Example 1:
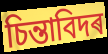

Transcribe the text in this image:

চিন্তাবিদৰ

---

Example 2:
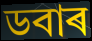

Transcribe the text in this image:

ডবাৰ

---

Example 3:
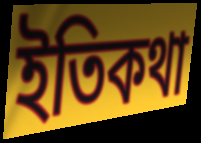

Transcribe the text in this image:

ইতিকথা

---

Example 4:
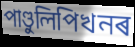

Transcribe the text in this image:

পাণ্ডুলিপিখনৰ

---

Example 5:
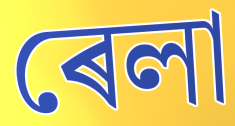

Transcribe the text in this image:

ৰেলা